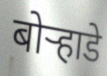
बोर्‍हाडे